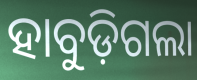
ହାବୁଡ଼ିଗଲା